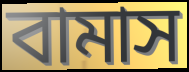
বামাস